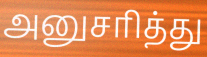
அனுசரித்து